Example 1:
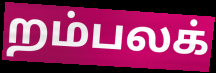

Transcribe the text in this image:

றம்பலக்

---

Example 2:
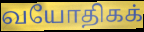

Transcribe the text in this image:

வயோதிகக்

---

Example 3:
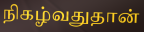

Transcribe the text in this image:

நிகழ்வதுதான்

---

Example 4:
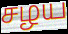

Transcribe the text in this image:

சழய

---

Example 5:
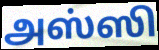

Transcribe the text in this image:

அஸ்ஸி